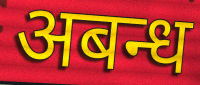
अबन्ध